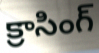
క్రాసింగ్